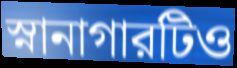
স্নানাগারটিও